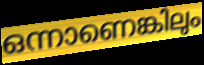
ഒന്നാണെങ്കിലും